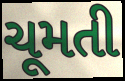
ચૂમતી